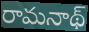
రామనాథ్